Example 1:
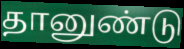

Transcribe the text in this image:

தானுண்டு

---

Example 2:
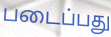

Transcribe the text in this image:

படைப்பது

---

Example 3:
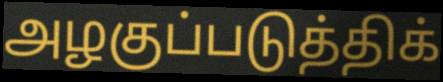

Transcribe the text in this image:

அழகுப்படுத்திக்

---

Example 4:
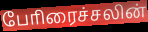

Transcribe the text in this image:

பேரிரைச்சலின்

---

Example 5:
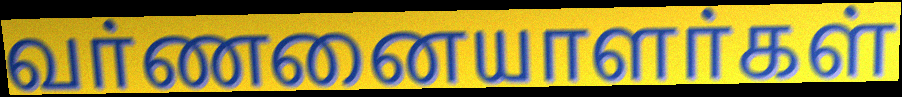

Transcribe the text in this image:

வர்ணனையாளர்கள்